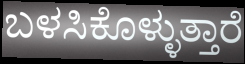
ಬಳಸಿಕೊಳ್ಳುತ್ತಾರೆ